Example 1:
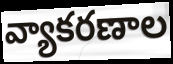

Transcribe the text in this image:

వ్యాకరణాల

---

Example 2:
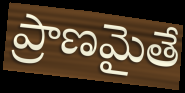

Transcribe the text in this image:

ప్రాణమైతే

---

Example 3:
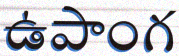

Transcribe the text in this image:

ఉపాంగ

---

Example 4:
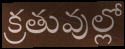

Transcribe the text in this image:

క్రతువుల్లో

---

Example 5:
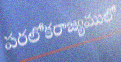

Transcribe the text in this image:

పరలోకరాజ్యములో